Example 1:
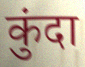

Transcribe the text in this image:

कुंदा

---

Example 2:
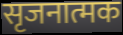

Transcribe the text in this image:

सृजनात्मक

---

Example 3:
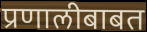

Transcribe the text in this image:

प्रणालीबाबत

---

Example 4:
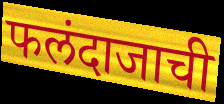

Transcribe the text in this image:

फलंदाजाची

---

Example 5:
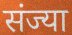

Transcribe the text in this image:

संज्या